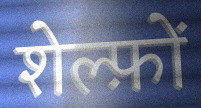
शेल्फ़ों